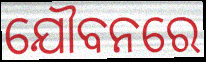
ଯୌବନରେ